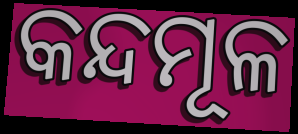
କନ୍ଦମୂଳ